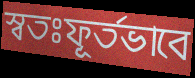
স্বতঃফূর্তভাবে